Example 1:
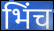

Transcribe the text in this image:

भिंच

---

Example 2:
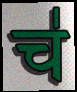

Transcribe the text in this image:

च॑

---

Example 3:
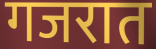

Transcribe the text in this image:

गजरात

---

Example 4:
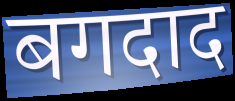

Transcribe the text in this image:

बगदाद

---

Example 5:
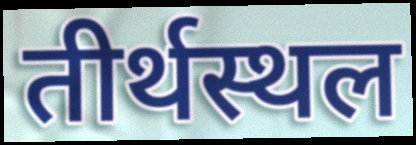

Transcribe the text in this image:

तीर्थस्थल